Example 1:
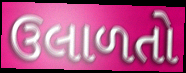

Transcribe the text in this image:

ઉલાળતો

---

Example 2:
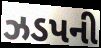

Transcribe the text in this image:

ઝડપની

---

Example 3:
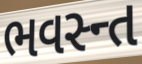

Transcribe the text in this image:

ભવસ્ન્ત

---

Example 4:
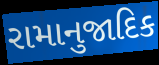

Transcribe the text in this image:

રામાનુજાદિક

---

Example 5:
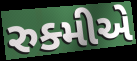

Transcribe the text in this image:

રુક્મીએ